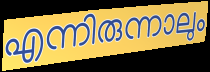
എന്നിരുന്നാലും